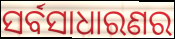
ସର୍ବସାଧାରଣର